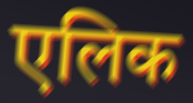
एलिक